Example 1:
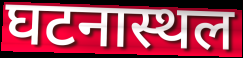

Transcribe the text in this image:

घटनास्थल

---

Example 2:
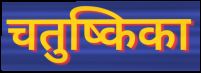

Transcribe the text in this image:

चतुष्किका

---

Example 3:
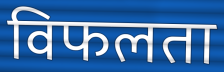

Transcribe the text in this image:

विफलता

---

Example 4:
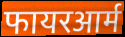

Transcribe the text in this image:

फायरआर्म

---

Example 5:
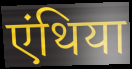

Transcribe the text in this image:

एंथिया